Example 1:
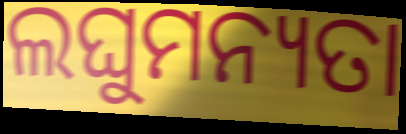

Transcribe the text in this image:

ଲଘୁମନ୍ୟତା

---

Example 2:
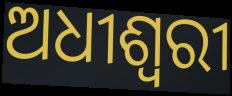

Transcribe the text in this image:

ଅଧୀଶ୍ୱରୀ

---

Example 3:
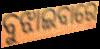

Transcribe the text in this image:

ବୁଝାଇବାରେ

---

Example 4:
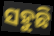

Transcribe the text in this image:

ସହୁଛି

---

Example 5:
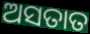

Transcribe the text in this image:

ଅସତାତ